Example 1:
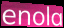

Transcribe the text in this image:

enola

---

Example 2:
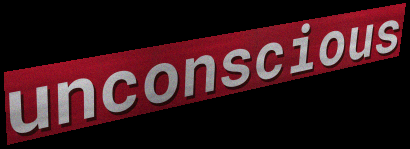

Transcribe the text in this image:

unconscious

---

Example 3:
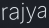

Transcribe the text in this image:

rajya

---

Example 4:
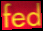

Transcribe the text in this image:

fed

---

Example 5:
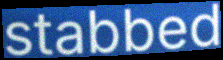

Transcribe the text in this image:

stabbed